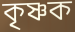
কৃষ্ণক